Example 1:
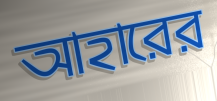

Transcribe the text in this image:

আহারের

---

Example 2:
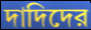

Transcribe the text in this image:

দাদিদের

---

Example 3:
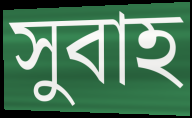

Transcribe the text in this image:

সুবাহ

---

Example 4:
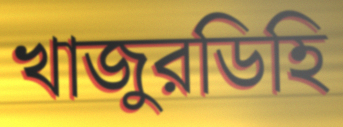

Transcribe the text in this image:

খাজুরডিহি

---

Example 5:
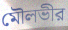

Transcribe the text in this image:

মৌলভীর